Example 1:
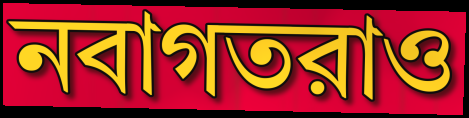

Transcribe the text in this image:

নবাগতরাও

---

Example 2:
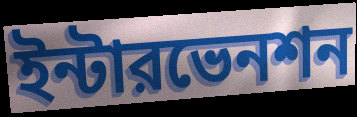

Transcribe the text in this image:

ইন্টারভেনশন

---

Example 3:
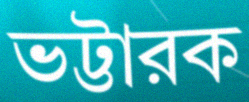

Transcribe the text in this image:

ভট্টারক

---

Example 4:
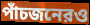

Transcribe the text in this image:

পাঁচজনেরও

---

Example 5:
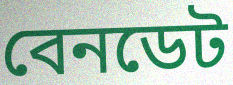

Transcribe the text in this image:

বেনডেট